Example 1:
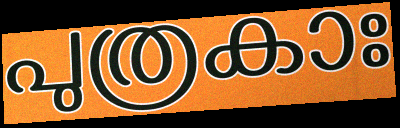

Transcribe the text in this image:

പുത്രകാഃ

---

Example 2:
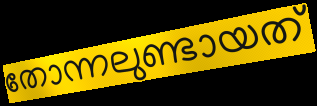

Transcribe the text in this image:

തോന്നലുണ്ടായത്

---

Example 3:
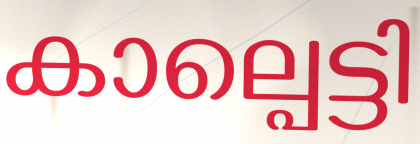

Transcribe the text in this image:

കാല്പെട്ടി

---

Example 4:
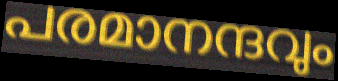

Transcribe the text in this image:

പരമാനന്ദവും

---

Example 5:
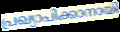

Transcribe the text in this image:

പ്രഖ്യാപിക്കാനായി